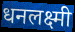
धनलक्ष्मी